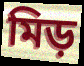
মিড়